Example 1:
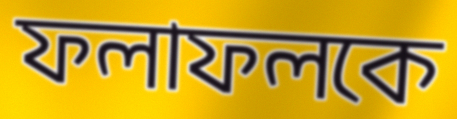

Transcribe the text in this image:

ফলাফলকে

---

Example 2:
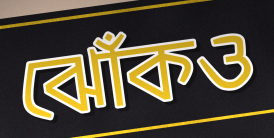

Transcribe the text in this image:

ঝোঁকও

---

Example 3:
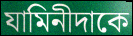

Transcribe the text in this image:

যামিনীদাকে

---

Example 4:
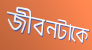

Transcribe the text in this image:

জীবনটাকে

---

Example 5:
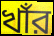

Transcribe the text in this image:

খাঁর